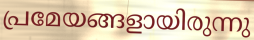
പ്രമേയങ്ങളായിരുന്നു